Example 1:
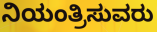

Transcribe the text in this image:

ನಿಯಂತ್ರಿಸುವರು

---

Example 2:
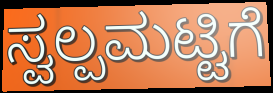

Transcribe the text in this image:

ಸ್ವಲ್ಪಮಟ್ಟಿಗೆ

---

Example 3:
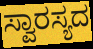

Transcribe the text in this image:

ಸ್ವಾರಸ್ಯದ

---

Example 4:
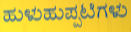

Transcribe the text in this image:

ಹುಳುಹುಪ್ಪಟೆಗಳು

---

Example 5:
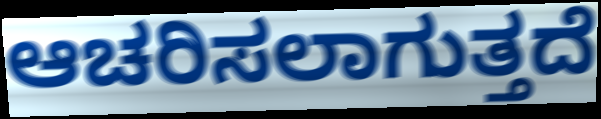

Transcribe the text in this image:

ಆಚರಿಸಲಾಗುತ್ತದೆ